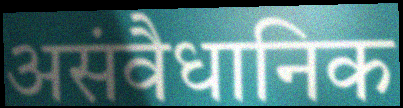
असंवैधानिक